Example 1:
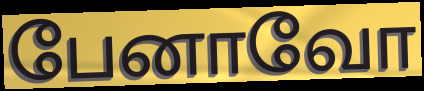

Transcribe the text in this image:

பேனாவோ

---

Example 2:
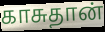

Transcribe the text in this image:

காசுதான்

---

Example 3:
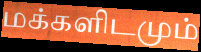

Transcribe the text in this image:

மக்களிடமும்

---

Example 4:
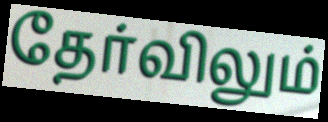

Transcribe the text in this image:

தேர்விலும்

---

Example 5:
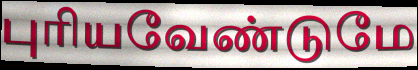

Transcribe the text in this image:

புரியவேண்டுமே